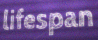
lifespan